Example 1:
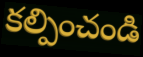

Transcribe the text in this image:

కల్పించండి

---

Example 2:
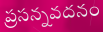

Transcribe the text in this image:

ప్రసన్నవదనం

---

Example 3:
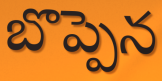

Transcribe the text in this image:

బొప్పెన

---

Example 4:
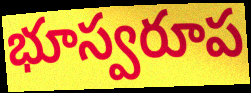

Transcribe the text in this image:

భూస్వరూప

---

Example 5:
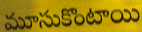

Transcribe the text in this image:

మూసుకొంటాయి